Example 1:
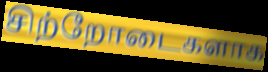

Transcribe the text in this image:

சிற்றோடைகளாக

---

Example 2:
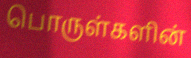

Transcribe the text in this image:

பொருள்களின்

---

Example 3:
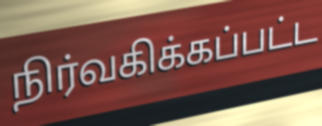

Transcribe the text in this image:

நிர்வகிக்கப்பட்ட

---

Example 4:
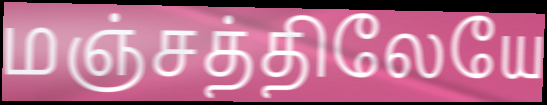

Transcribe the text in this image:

மஞ்சத்திலேயே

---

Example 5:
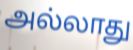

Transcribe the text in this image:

அல்லாது